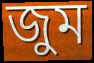
জুম